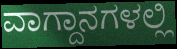
ವಾಗ್ದಾನಗಳಲ್ಲಿ